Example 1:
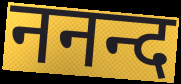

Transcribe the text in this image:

ननन्द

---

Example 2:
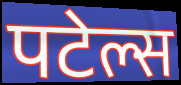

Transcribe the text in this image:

पटेल्स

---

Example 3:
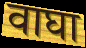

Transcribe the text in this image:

वाघा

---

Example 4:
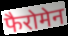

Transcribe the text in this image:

फैरोमेन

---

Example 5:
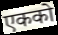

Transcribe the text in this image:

एकको